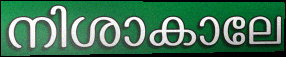
നിശാകാലേ